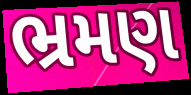
ભ્રમણ